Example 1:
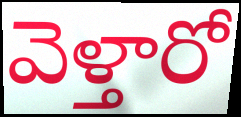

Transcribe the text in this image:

వెళ్తారో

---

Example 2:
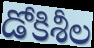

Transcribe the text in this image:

డోకిశీల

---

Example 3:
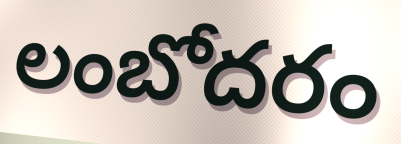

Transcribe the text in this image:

లంబోదరం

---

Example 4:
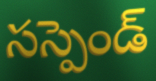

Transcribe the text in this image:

సస్పెండ్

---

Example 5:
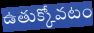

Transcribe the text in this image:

ఉతుక్కోవటం